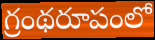
గ్రంథరూపంలో